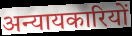
अन्यायकारियों